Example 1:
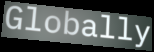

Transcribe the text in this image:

Globally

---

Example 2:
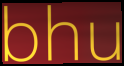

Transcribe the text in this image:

bhu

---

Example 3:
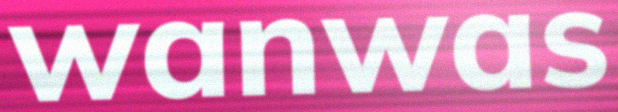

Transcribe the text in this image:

wanwas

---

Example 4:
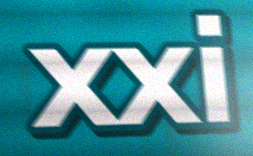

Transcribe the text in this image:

xxi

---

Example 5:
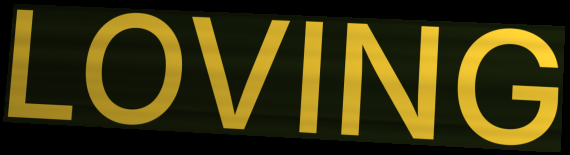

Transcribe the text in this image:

LOVING